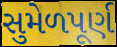
સુમેળપૂર્ણ